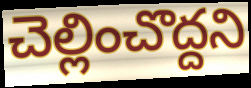
చెల్లించొద్దని